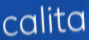
calita